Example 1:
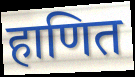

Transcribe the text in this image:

हाणित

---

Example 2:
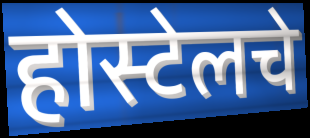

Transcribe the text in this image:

होस्टेलचे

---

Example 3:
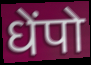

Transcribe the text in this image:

धेंपो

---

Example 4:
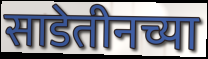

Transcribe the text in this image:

साडेतीनच्या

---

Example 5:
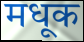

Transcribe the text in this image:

मधूक